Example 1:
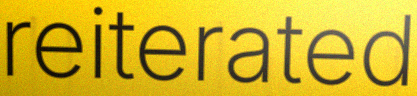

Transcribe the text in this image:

reiterated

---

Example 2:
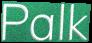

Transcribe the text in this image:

Palk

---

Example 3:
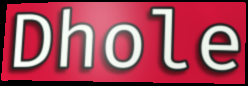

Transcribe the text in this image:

Dhole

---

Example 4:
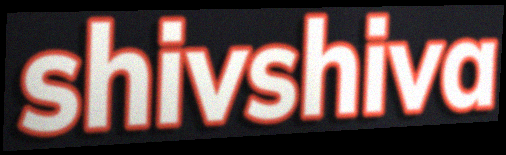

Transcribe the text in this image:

shivshiva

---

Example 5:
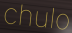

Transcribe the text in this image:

chulo